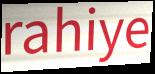
rahiye